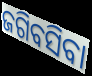
ଜଗିବସିବା